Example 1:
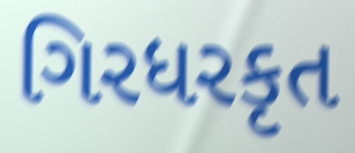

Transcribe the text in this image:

ગિરધરકૃત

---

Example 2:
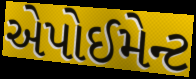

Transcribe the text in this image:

એપોઈમેન્ટ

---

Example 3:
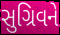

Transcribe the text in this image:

સુગ્રિવને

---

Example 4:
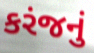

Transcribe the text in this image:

કરંજનું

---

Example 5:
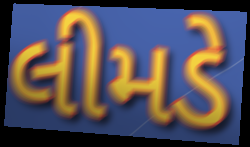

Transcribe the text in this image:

લીમડે